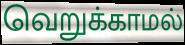
வெறுக்காமல்